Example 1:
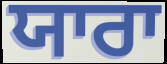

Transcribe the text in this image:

ਯਾਰਾ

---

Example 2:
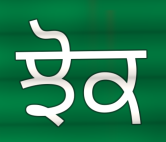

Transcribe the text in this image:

ਝੋਕ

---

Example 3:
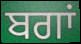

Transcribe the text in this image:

ਬਗਾਂ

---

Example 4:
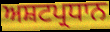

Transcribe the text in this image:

ਅਸ਼ਟਪ੍ਰਧਾਨ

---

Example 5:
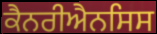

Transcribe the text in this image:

ਕੈਨਰੀਐਨਸਿਸ